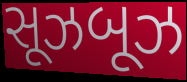
સૂઝબૂઝ